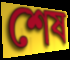
শেষ